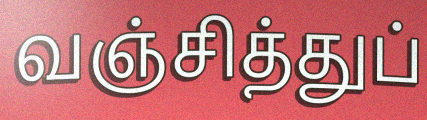
வஞ்சித்துப்